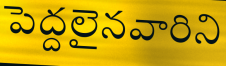
పెద్దలైనవారిని